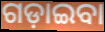
ଗଡ଼ାଇବା